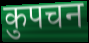
कुपचन